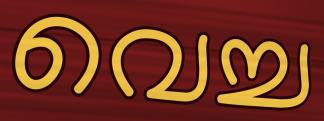
വെച്ച